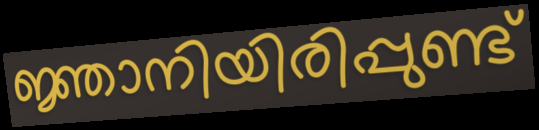
ജ്ഞാനിയിരിപ്പുണ്ട്